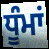
ਧੂੰਮਾਂ